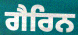
ਗੈਰਿਨ